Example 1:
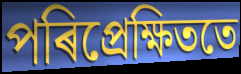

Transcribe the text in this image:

পৰিপ্ৰেক্ষিততে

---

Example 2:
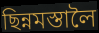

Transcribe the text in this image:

ছিন্নমস্তালৈ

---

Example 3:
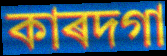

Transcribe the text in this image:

কাৰদগা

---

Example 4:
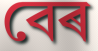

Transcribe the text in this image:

বেৰ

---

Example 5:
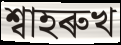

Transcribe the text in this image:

শ্বাহৰুখ